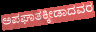
ಅಪಘಾತಕ್ಕೀಡಾದವರ